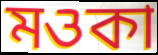
মওকা